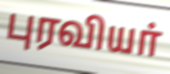
புரவியர்